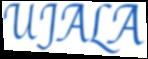
UJALA